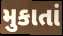
મુકાતાં